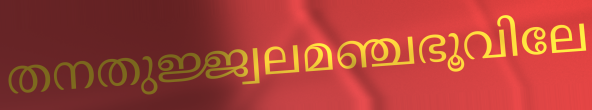
തനതുജ്ജ്വലമഞ്ചഭൂവിലേ